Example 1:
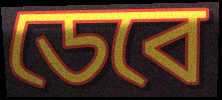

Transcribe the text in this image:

ডেবে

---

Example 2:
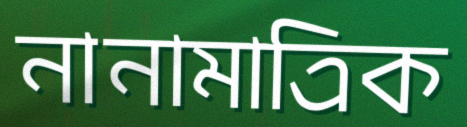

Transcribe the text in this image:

নানামাত্রিক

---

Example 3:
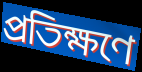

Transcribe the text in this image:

প্রতিক্ষণে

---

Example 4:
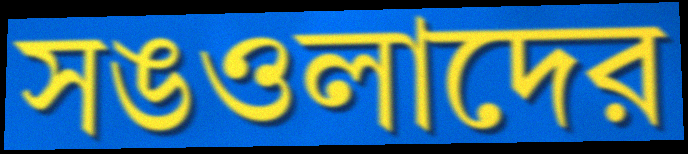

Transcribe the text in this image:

সঙওলাদের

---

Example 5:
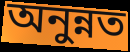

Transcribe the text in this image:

অনুন্নত